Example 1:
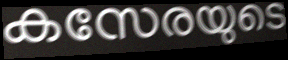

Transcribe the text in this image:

കസേരയുടെ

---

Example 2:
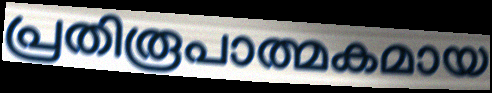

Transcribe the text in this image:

പ്രതിരൂപാത്മകമായ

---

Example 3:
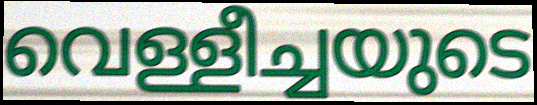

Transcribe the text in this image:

വെള്ളീച്ചയുടെ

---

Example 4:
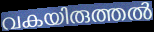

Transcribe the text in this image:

വകയിരുത്തൽ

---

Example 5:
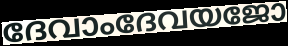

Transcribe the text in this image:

ദേവാംദേവയജോ